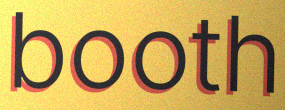
booth